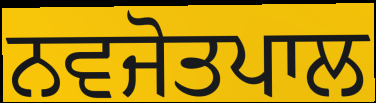
ਨਵਜੋਤਪਾਲ